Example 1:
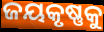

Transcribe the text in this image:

ଜୟକୃଷ୍ଣକୁ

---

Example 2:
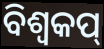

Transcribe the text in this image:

ବିଶ୍ୱକପ୍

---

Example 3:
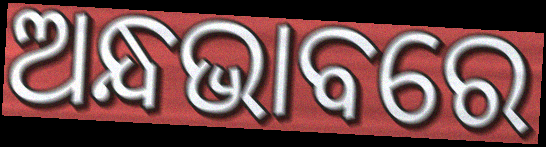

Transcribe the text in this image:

ଅନ୍ଧଭାବରେ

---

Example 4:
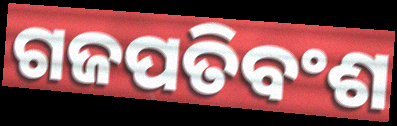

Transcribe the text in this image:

ଗଜପତିବଂଶ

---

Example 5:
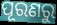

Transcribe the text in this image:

ପୂରଣରୁ